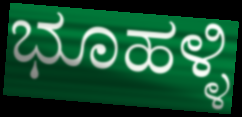
ಭೂಹಳ್ಳಿ